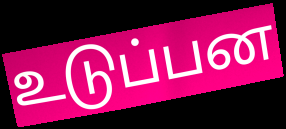
உடுப்பன